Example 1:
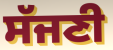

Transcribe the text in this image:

ਸੱਜਣੀ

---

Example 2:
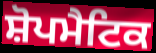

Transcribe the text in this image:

ਸ਼ੋਪਮੈਟਿਕ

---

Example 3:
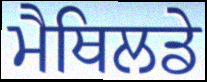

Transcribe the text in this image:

ਮੈਥਿਲਡੇ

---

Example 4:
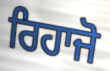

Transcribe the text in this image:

ਰਿਹਾਜੋ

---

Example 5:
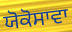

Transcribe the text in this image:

ਯੋਕੋਸਾਵਾ